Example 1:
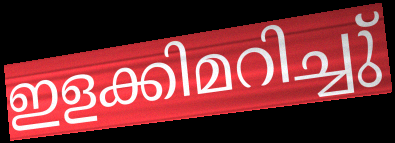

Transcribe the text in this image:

ഇളക്കിമറിച്ചു്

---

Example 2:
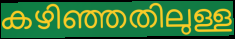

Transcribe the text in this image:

കഴിഞ്ഞതിലുള്ള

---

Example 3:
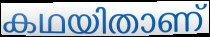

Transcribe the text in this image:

കഥയിതാണ്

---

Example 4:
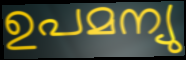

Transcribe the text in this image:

ഉപമന്യു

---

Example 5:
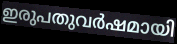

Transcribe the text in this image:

ഇരുപതുവർഷമായി